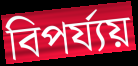
বিপৰ্য্যয়